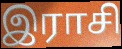
இராசி